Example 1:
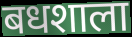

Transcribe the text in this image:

बधशाला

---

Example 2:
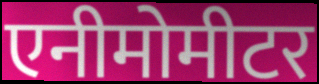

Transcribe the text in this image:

एनीमोमीटर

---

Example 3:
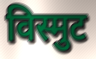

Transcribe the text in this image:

विस्मुट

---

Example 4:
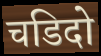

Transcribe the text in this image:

चडिदो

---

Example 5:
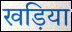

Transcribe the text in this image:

खड़िया